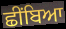
ਛੀਂਬਿਆ